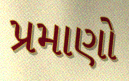
પ્રમાણો